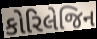
કોરિલેજિન